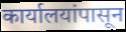
कार्यालयांपासून